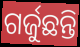
ଗର୍ଜୁଛନ୍ତି